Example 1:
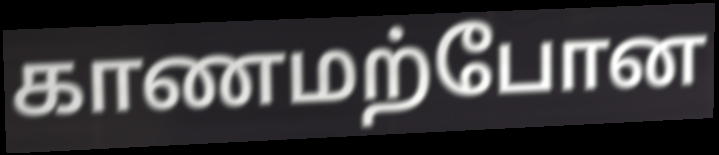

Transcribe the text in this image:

காணமற்போன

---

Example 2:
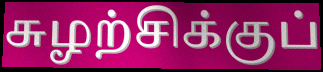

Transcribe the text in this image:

சுழற்சிக்குப்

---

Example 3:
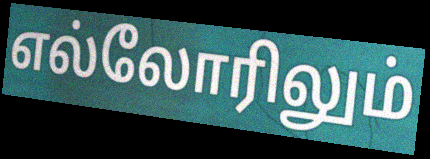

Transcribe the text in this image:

எல்லோரிலும்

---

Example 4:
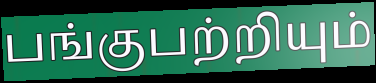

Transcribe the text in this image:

பங்குபற்றியும்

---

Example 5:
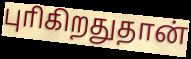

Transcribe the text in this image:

புரிகிறதுதான்